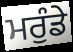
ਮਰੁੰਡੇ